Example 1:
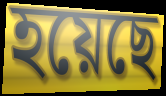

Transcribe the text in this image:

হয়েছে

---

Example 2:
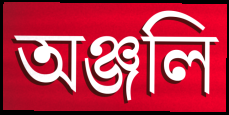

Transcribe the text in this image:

অঞ্জলি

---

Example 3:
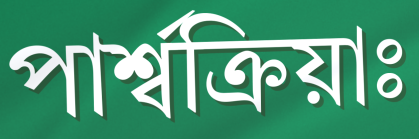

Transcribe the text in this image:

পাৰ্শ্বক্ৰিয়াঃ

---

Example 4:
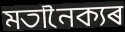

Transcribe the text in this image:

মতানৈক্যৰ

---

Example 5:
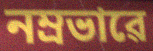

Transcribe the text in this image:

নম্ৰভাৱে